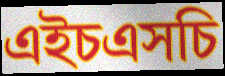
এইচএসচি